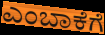
ಎಂಬಾಕೆಗೆ